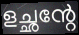
ളച്ഛന്റേ